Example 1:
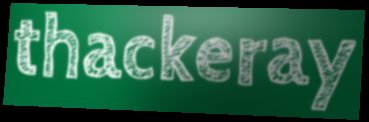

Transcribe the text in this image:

thackeray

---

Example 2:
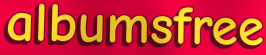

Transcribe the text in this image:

albumsfree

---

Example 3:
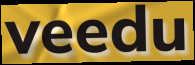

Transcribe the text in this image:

veedu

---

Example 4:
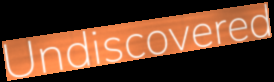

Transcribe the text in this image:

Undiscovered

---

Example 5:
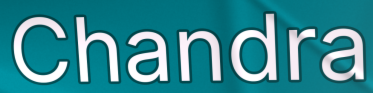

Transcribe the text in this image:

Chandra